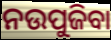
ନଉପୁଜିବା